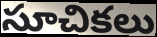
సూచికలు